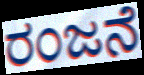
ರಂಜನೆ